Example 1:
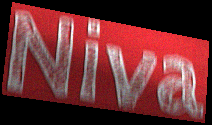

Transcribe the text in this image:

Niva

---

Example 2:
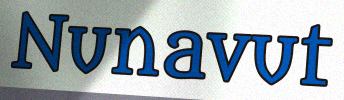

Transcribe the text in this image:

Nunavut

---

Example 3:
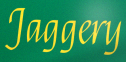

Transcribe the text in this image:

Jaggery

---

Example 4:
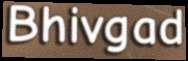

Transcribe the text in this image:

Bhivgad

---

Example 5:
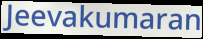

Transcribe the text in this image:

Jeevakumaran